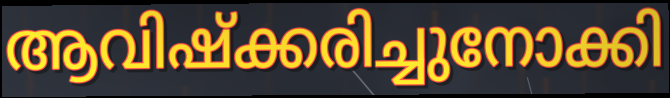
ആവിഷ്ക്കരിച്ചുനോക്കി